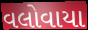
વલોવાયા